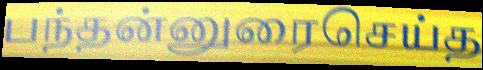
பந்தன்னுரைசெய்த